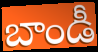
బాండీ